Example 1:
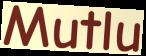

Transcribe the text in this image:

Mutlu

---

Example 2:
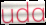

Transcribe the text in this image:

uda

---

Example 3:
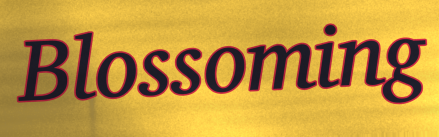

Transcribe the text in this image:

Blossoming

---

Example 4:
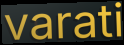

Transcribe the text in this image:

varati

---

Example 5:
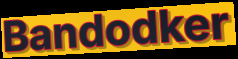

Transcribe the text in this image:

Bandodker